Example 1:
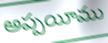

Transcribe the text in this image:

అప్పయీము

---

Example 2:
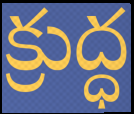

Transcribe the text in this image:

క్రుద్ధ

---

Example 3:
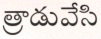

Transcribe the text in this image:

త్రాడువేసి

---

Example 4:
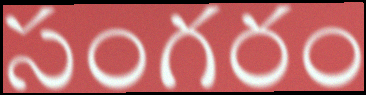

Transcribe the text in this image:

సంగరం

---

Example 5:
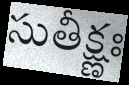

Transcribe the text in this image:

సుతీక్ష్ణః